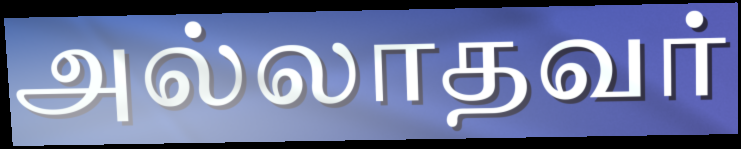
அல்லாதவர்